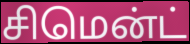
சிமென்ட்